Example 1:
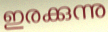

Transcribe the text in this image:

ഇരക്കുന്നു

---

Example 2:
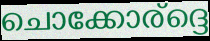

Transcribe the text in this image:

ചൊക്കോര്ദ്ദെ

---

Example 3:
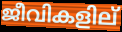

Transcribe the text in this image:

ജീവികളില്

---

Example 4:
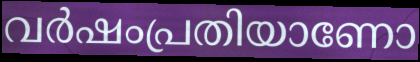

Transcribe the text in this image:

വർഷംപ്രതിയാണോ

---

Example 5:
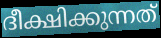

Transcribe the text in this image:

ദീക്ഷിക്കുന്നത്